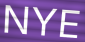
NYE